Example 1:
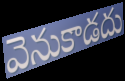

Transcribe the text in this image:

వెనుకాడదు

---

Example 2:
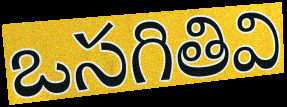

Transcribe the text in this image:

ఒసగితివి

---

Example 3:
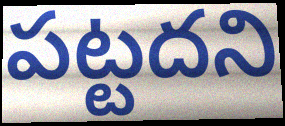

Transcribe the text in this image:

పట్టదని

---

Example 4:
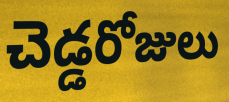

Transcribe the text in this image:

చెడ్డరోజులు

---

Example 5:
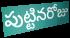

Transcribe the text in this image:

పుట్టినరోజు